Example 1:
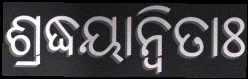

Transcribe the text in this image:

ଶ୍ରଦ୍ଧୟାନ୍ୱିତାଃ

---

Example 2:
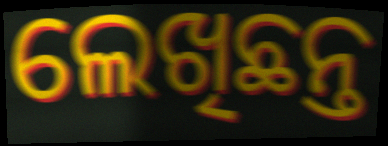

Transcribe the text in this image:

ଲେଖିଛନ୍ତ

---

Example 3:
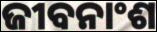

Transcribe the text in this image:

ଜୀବନାଂଶ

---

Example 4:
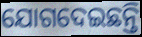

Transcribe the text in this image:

ଯୋଗଦେଇଛନ୍ତି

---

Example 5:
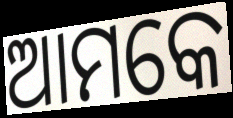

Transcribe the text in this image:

ଆମକେ